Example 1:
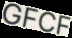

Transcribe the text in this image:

GFCF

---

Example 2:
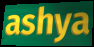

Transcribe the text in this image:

ashya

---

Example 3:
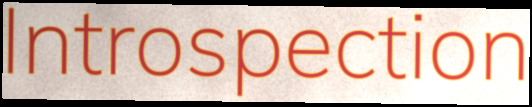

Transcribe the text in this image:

Introspection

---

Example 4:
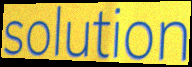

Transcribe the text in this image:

solution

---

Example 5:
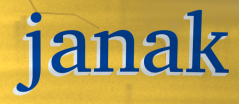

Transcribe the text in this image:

janak